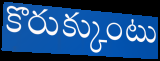
కొరుక్కుంటు